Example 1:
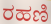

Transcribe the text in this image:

ರಹಣಿ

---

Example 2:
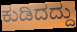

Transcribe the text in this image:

ಕುಡಿದದ್ದು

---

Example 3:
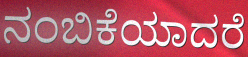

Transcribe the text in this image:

ನಂಬಿಕೆಯಾದರೆ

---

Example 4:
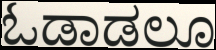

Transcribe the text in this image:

ಓಡಾಡಲೂ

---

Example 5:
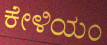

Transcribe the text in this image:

ಕೇಳಿಯಂ